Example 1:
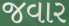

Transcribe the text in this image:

જવાર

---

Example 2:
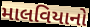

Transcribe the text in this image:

માલવિયાનો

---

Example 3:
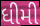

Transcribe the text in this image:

ધીમી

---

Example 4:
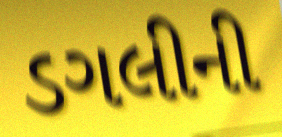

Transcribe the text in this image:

ડગલીની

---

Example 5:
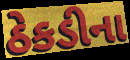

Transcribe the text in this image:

ઠેકડીના